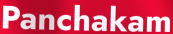
Panchakam